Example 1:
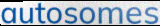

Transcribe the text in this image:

autosomes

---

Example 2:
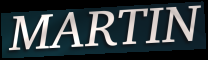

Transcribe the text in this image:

MARTIN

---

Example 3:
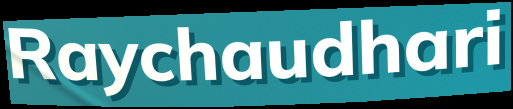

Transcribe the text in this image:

Raychaudhari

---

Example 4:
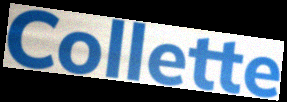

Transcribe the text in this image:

Collette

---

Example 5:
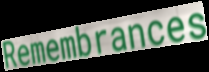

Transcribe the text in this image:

Remembrances